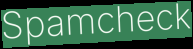
Spamcheck